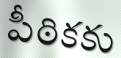
పీఠికకు